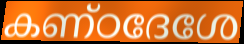
കണ്ഠദേശേ